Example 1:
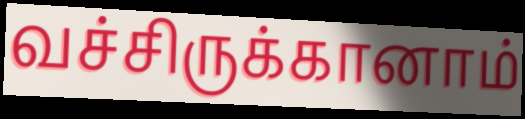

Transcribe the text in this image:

வச்சிருக்கானாம்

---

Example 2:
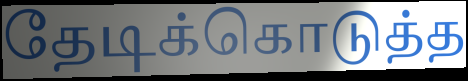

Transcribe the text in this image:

தேடிக்கொடுத்த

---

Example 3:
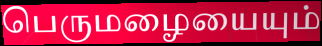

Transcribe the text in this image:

பெருமழையையும்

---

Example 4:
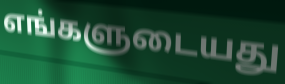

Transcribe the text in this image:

எங்களுடையது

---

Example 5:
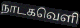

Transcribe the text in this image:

நாடகவெளி